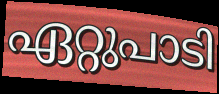
ഏറ്റുപാടി